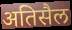
अतिसैल